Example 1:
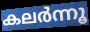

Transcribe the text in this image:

കലർന്നൂ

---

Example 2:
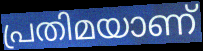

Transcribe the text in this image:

പ്രതിമയാണ്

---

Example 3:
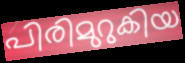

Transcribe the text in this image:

പിരിമുറുകിയ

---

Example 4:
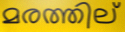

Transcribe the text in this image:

മരത്തില്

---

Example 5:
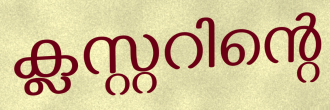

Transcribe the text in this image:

ക്ലസ്റ്ററിന്റെ